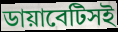
ডায়াবেটিসই